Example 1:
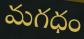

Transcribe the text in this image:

మగధం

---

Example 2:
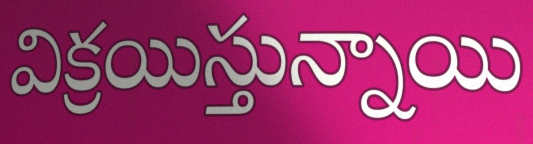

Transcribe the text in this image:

విక్రయిస్తున్నాయి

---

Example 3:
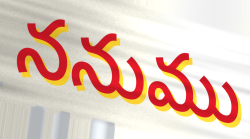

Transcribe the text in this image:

ననుము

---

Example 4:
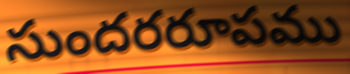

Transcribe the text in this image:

సుందరరూపము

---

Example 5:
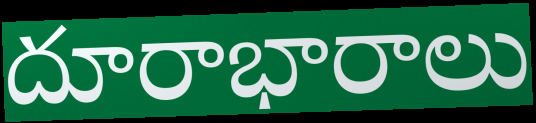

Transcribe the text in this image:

దూరాభారాలు